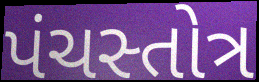
પંચસ્તોત્ર